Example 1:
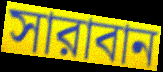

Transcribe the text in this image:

সারাবান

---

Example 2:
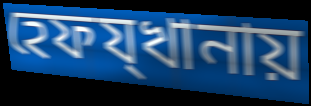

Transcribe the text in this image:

হেফয্খানায়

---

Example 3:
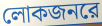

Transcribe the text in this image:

লোকজনরে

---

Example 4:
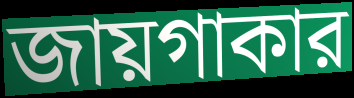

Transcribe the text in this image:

জায়গাকার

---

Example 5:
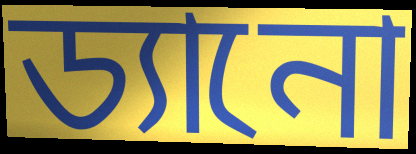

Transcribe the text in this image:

ড্যানো